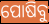
ପୋଷିବୁ